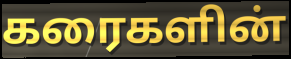
கரைகளின்